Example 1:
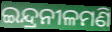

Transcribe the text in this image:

ଇନ୍ଦ୍ରନୀଳମଣି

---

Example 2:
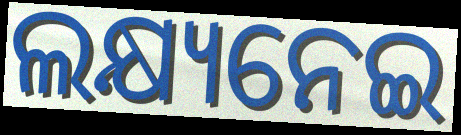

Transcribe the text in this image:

ଲକ୍ଷ୍ୟନେଇ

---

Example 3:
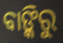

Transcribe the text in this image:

ବାଙ୍କିରୁ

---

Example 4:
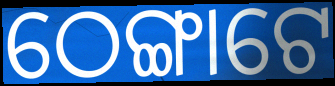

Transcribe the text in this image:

ଠେଙ୍ଗାଟେ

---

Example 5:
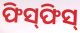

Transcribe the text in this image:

ଫିସ୍‍ଫିସ୍